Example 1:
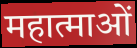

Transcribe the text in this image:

महात्‍माओं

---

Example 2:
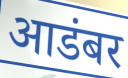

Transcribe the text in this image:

आडंबर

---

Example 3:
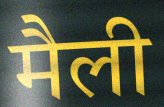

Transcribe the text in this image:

मैली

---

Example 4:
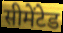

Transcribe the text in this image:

सीमेंटेड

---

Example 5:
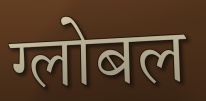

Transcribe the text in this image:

ग्लोबल